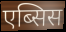
एब्सिस